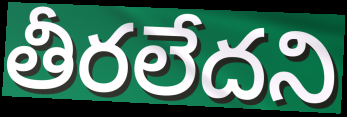
తీరలేదని